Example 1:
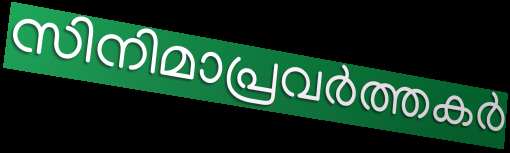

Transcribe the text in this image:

സിനിമാപ്രവർത്തകർ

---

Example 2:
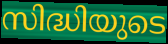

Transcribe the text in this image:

സിദ്ധിയുടെ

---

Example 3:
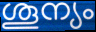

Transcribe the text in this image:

ശൂന്യം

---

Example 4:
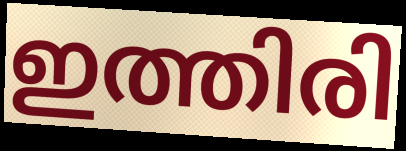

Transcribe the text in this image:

ഇത്തിരി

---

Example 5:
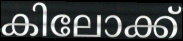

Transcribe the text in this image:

കിലോക്ക്